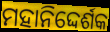
ମହାନିଦ୍ଦେର୍ଶକ